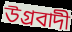
উগ্ৰবাদী